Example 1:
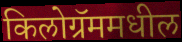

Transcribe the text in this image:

किलोग्रॅममधील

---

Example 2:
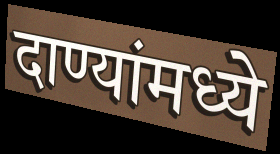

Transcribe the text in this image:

दाण्यांमध्ये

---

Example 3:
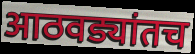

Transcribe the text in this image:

आठवड्यांतच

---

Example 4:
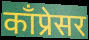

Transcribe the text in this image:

काँप्रेसर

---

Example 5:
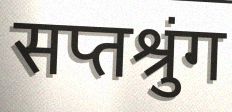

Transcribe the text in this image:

सप्तश्रुंग